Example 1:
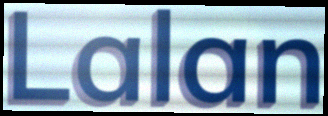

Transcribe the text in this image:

Lalan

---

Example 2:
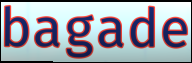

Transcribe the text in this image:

bagade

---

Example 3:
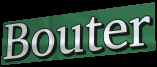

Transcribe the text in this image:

Bouter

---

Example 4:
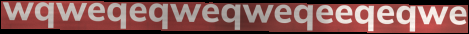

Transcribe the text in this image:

wqweqeqweqweqeeqeqwe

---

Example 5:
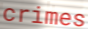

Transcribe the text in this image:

crimes